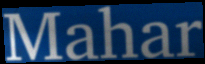
Mahar